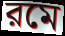
রমে